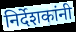
निर्देशकांनी